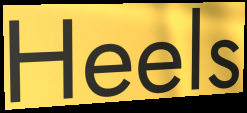
Heels